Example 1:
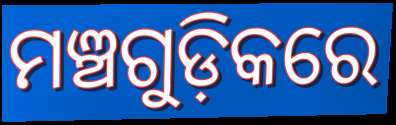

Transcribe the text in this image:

ମଞ୍ଚଗୁଡ଼ିକରେ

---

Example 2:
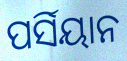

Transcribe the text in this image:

ପର୍ସିୟାନ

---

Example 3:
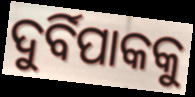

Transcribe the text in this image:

ଦୁର୍ବିପାକକୁ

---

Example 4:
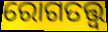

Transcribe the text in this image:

ରୋଗତତ୍ତ୍ୱ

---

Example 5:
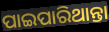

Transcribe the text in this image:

ପାଇପାରିଥାନ୍ତା